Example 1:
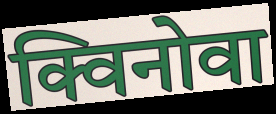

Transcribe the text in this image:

क्विनोवा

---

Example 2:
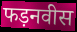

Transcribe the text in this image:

फड़नवीस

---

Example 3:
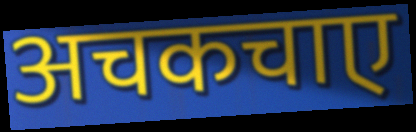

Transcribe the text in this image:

अचकचाए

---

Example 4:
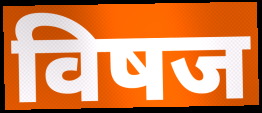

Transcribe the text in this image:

विषज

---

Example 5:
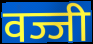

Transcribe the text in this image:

वज्जी